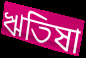
ঋতিষা